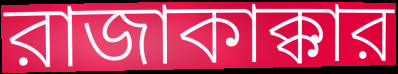
রাজাকাক্কার